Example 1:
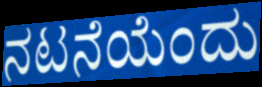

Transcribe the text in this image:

ನಟನೆಯೆಂದು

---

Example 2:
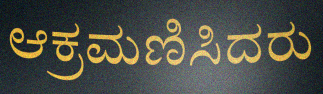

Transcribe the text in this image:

ಆಕ್ರಮಣಿಸಿದರು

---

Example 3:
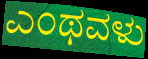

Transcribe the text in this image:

ಎಂಥವಳು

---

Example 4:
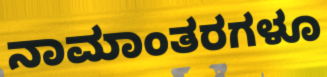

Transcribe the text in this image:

ನಾಮಾಂತರಗಳೂ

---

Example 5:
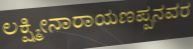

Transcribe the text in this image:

ಲಕ್ಷ್ಮೀನಾರಾಯಣಪ್ಪನವರ